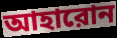
আহারোন